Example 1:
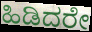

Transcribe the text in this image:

ಹಿಡಿದರೇ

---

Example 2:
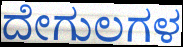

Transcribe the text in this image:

ದೇಗುಲಗಳ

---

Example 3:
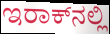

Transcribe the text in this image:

ಇರಾಕ್‍ನಲ್ಲಿ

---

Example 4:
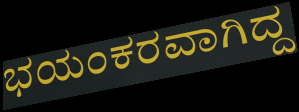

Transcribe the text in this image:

ಭಯಂಕರವಾಗಿದ್ದ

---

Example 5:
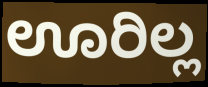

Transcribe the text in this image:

ಊರಿಲ್ಲ